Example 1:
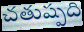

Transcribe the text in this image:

చతుష్పది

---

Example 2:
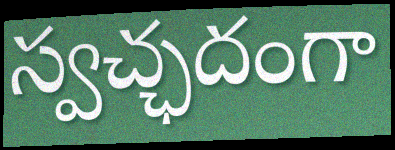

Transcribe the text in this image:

స్వచ్ఛదంగా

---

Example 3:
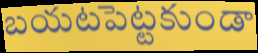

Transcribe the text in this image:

బయటపెట్టకుండా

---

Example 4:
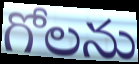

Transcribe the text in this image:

గోలను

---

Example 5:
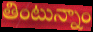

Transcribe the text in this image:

తింటున్నాం